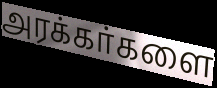
அரக்கர்களை